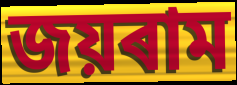
জয়ৰাম